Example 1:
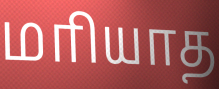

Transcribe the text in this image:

மரியாத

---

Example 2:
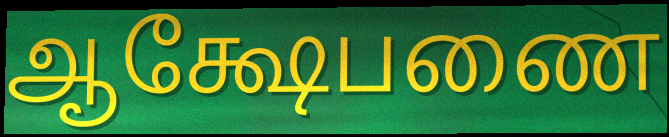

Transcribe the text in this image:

ஆக்ஷேபணை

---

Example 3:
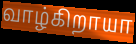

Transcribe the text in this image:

வாழ்கிறாயா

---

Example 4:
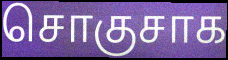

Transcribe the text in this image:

சொகுசாக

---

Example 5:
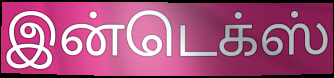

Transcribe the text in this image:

இன்டெக்ஸ்